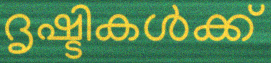
ദൃഷ്ടികൾക്ക്